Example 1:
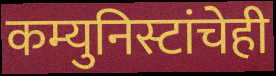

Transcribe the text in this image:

कम्युनिस्टांचेही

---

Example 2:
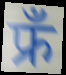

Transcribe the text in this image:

फ्रँ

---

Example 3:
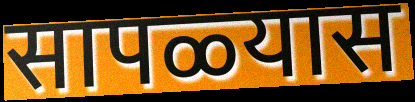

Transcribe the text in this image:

सापळ्यास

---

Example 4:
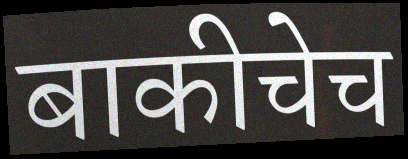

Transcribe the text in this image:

बाकीचेच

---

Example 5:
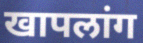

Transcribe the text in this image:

खापलांग